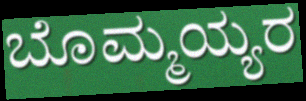
ಬೊಮ್ಮಯ್ಯರ